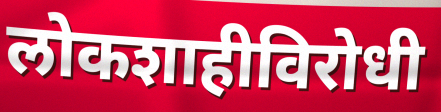
लोकशाहीविरोधी